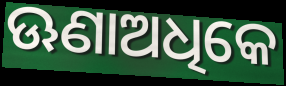
ଊଣାଅଧିକେ